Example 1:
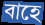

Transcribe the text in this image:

বাহে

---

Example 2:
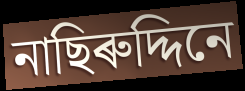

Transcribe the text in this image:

নাছিৰুদ্দিনে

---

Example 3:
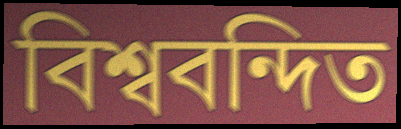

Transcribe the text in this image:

বিশ্ববন্দিত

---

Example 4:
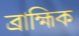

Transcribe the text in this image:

ব্ৰাহ্মিক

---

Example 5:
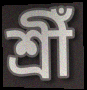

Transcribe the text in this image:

শ্ৰীঁ